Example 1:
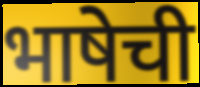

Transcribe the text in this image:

भाषेची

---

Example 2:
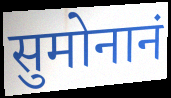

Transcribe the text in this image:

सुमोनानं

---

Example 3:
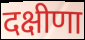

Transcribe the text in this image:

दक्षीणा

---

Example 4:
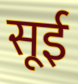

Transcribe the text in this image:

सूई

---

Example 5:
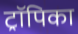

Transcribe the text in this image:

ट्रॉपिका